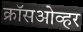
क्रॉसओव्हर